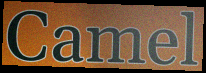
Camel